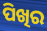
ପିଖିର